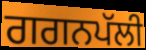
ਗਗਨਪੱਲੀ